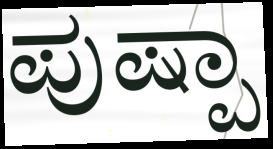
ಪುಷ್ಪಾ